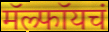
मॅल्फॉयचं